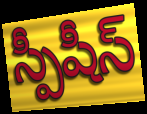
స్పీషీస్